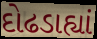
દોઢડાહ્યાં